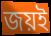
জয়ই